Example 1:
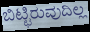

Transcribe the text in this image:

ಬಿಟ್ಟಿರುವುದಿಲ್ಲ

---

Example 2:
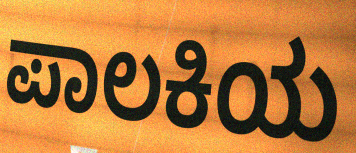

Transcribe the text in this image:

ಪಾಲಕಿಯ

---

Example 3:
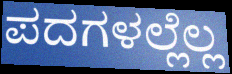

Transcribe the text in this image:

ಪದಗಳಲ್ಲೆಲ್ಲ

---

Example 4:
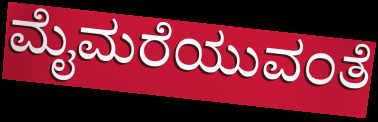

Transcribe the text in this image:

ಮೈಮರೆಯುವಂತೆ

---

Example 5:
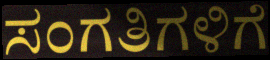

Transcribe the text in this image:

ಸಂಗತಿಗಳಿಗೆ